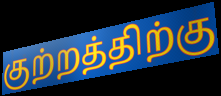
குற்றத்திற்கு